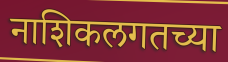
नाशिकलगतच्या